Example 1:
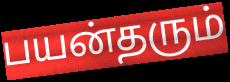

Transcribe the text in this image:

பயன்தரும்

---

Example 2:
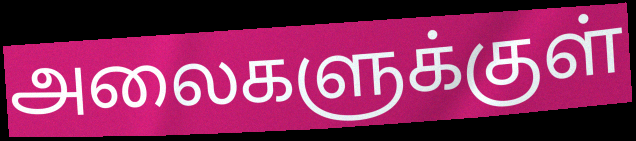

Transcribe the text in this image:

அலைகளுக்குள்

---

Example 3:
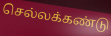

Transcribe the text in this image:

செல்லக்கண்டு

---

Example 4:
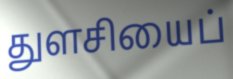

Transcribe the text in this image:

துளசியைப்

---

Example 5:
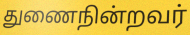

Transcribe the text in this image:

துணைநின்றவர்